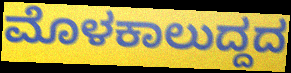
ಮೊಳಕಾಲುದ್ದದ